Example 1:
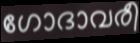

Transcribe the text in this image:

ഗോദാവരീ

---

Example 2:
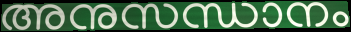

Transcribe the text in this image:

അനുസന്ധാനം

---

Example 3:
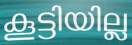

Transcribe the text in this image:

കൂട്ടിയില്ല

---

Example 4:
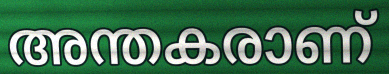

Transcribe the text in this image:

അന്തകരാണ്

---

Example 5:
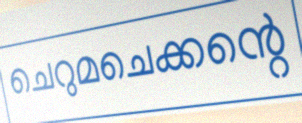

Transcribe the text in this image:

ചെറുമചെക്കന്റെ